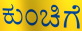
ಕುಂಚಿಗೆ